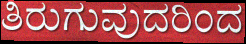
ತಿರುಗುವುದರಿಂದ